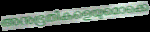
അനുഭൂതികളെയുമൊക്കെ